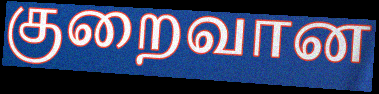
குறைவான